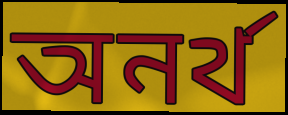
অনর্থ